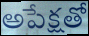
అపేక్షతో